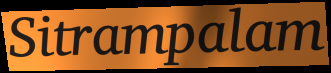
Sitrampalam